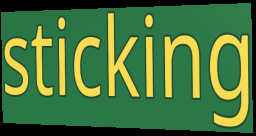
sticking